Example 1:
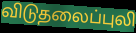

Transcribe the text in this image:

விடுதலைப்புலி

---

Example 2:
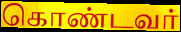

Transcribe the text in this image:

கொண்டவர்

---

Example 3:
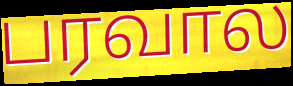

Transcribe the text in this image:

பரவால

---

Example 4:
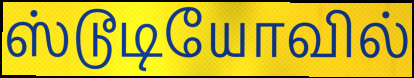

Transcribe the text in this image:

ஸ்டூடியோவில்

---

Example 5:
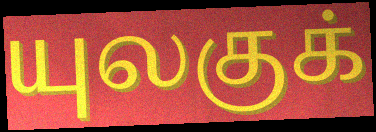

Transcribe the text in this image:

யுலகுக்